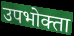
उपभोक्ता